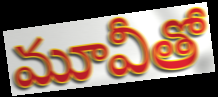
మూవీతో